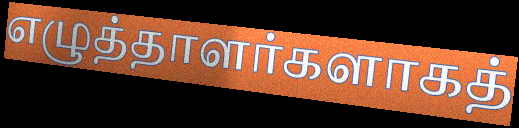
எழுத்தாளர்களாகத்